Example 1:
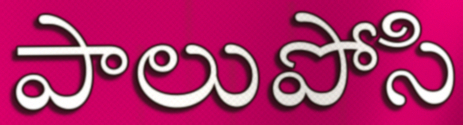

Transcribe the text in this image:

పాలుపోసి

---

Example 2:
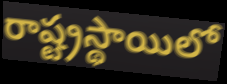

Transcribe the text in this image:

రాష్ట్రస్థాయిలో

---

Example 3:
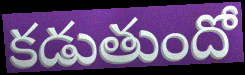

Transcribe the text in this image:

కడుతుందో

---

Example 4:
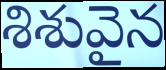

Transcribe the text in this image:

శిశువైన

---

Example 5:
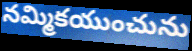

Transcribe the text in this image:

నమ్మికయుంచును